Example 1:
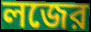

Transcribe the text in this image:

লজের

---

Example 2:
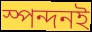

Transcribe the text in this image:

স্পন্দনই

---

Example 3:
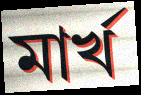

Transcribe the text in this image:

মার্খ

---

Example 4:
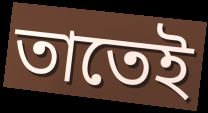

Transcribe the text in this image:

তাতেই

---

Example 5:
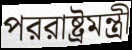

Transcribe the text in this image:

পররাষ্ট্রমন্ত্রী